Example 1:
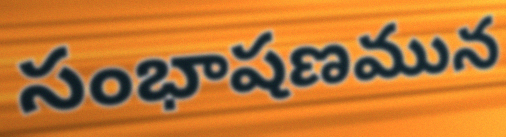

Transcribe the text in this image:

సంభాషణమున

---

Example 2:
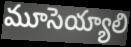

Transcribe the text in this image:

మూసెయ్యాలి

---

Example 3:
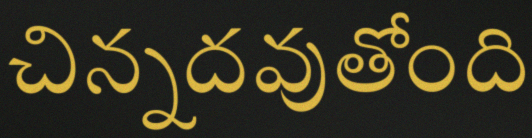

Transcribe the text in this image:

చిన్నదవుతోంది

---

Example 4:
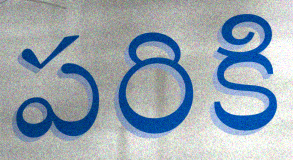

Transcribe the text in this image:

పరికి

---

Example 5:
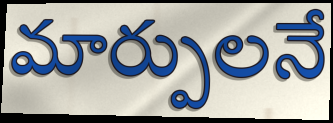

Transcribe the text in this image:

మార్పులనే